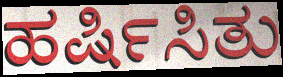
ಹರ್ಷಿಸಿತು